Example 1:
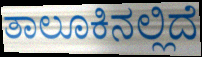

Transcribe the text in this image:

ತಾಲೂಕಿನಲ್ಲಿದೆ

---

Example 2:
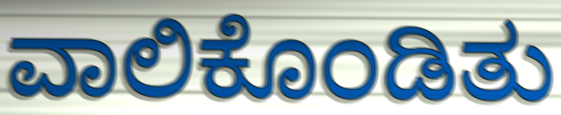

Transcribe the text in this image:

ವಾಲಿಕೊಂಡಿತು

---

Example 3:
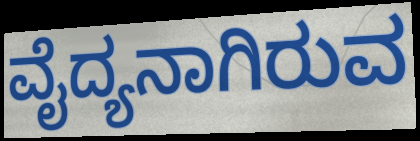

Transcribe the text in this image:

ವೈದ್ಯನಾಗಿರುವ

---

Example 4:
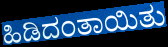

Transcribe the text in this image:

ಹಿಡಿದಂತಾಯಿತು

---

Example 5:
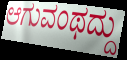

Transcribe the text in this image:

ಆಗುವಂಥದ್ದು